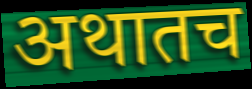
अथातच